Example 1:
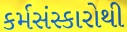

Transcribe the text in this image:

કર્મસંસ્કારોથી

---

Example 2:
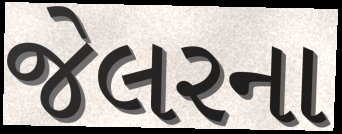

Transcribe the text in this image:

જેલરના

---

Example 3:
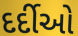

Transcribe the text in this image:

દર્દીઓ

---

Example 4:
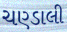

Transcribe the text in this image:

ચણ્ડાલી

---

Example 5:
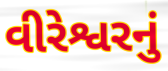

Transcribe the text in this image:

વીરેશ્વરનું